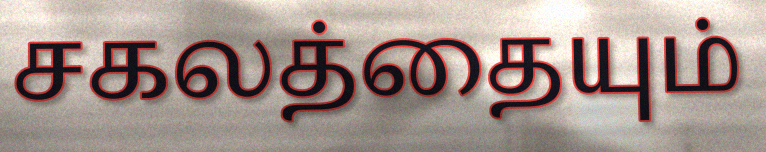
சகலத்தையும்